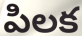
పిలక